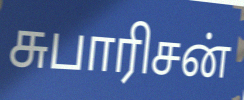
சுபாரிசன்